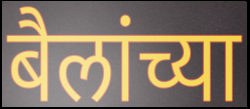
बैलांच्या